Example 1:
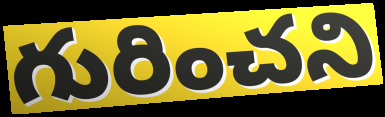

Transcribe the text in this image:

గురించని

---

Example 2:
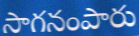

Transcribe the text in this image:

సాగనంపారు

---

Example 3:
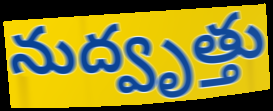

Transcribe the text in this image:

నుద్వృత్తు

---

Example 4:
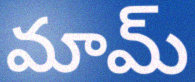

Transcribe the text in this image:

మామ్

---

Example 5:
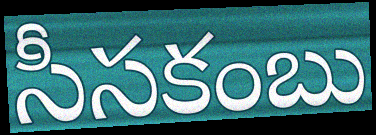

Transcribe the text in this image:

సీసకంబు